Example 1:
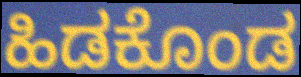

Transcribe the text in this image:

ಹಿಡಕೊಂಡ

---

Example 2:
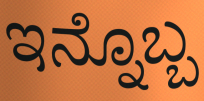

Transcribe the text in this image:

ಇನ್ನೊಬ್ಬ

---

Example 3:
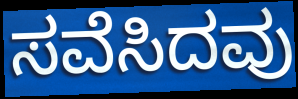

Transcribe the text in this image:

ಸವೆಸಿದವು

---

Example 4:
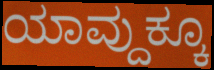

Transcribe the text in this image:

ಯಾವ್ದುಕ್ಕೂ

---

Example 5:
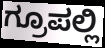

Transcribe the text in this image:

ಗ್ರೂಪಲ್ಲಿ